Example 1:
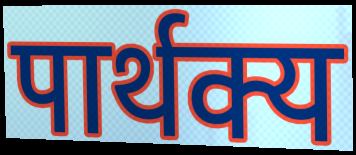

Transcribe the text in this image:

पार्थक्य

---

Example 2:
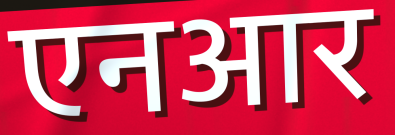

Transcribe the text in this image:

एनआर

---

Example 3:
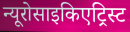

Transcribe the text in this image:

न्यूरोसाइकिएट्रिस्ट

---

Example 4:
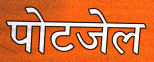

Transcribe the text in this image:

पोटजेल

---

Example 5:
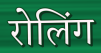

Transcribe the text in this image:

रोलिंग